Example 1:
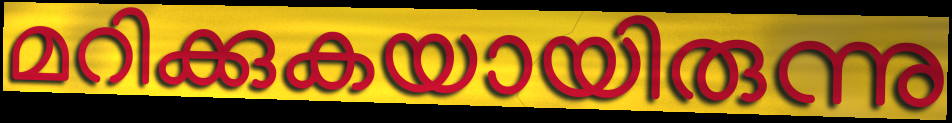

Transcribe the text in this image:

മറിക്കുകയായിരുന്നു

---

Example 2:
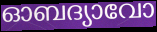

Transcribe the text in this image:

ഓബദ്യാവോ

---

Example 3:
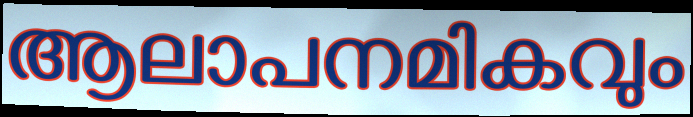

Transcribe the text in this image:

ആലാപനമികവും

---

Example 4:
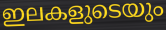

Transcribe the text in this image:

ഇലകളുടെയും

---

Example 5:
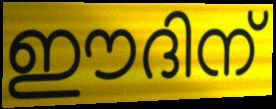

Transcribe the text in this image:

ഈദിന്